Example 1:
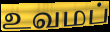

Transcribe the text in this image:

உவமப்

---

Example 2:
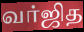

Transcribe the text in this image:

வர்ஜித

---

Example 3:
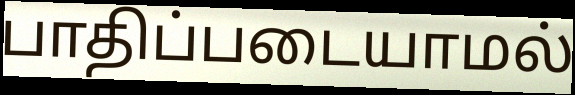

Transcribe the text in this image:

பாதிப்படையாமல்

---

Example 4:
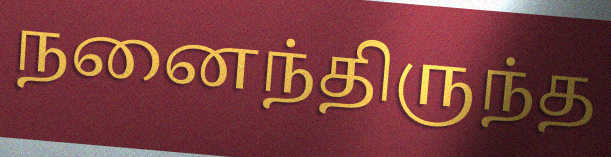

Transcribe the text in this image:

நனைந்திருந்த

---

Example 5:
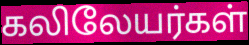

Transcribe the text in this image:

கலிலேயர்கள்